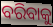
ବରିବାକୁ